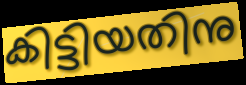
കിട്ടിയതിനു